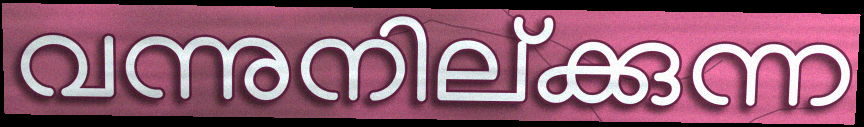
വന്നുനില്ക്കുന്ന